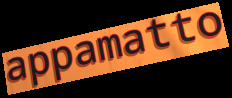
appamatto